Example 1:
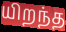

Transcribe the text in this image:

யிறந்த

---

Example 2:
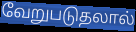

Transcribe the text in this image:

வேறுபடுதலால்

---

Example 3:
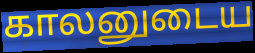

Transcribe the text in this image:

காலனுடைய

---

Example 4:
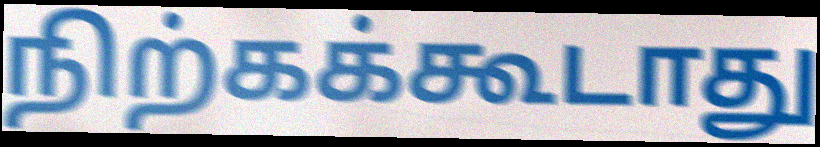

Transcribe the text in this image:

நிற்கக்கூடாது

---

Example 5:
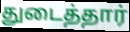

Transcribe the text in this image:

துடைத்தார்